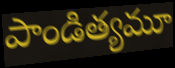
పాండిత్యమూ